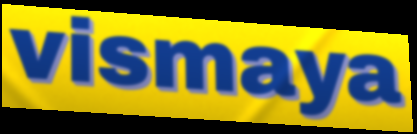
vismaya